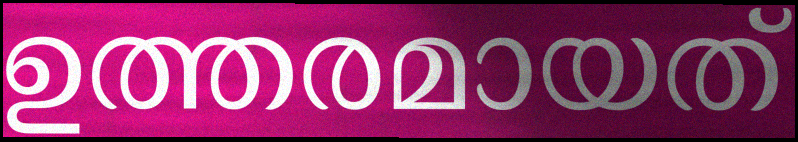
ഉത്തരമായത്